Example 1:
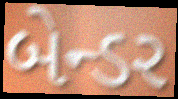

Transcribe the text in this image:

બેન્ડર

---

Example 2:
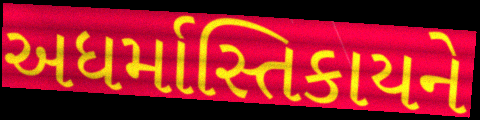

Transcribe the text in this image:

અધર્માસ્તિકાયને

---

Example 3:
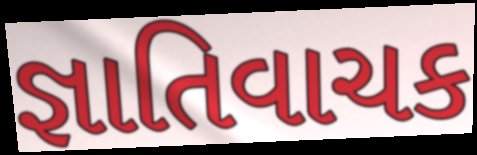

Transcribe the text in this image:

જ્ઞાતિવાચક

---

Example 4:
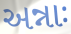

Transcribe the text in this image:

અન્નાઃ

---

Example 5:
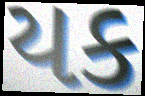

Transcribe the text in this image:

યક